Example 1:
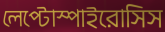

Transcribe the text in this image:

লেপ্টোস্পাইরোসিস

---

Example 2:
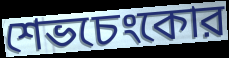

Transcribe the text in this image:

শেভচেংকোর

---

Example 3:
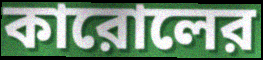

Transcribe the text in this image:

কারোলের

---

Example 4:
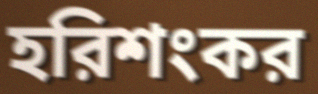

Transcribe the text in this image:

হরিশংকর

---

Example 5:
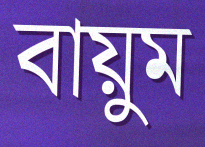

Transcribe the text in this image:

বায়ুম